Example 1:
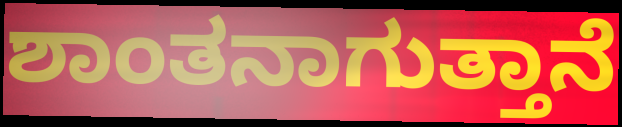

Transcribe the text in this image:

ಶಾಂತನಾಗುತ್ತಾನೆ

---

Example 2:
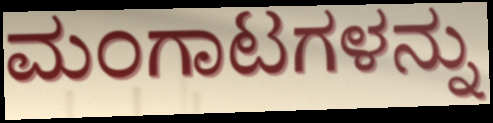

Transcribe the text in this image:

ಮಂಗಾಟಗಳನ್ನು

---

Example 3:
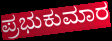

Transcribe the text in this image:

ಪ್ರಭುಕುಮಾರ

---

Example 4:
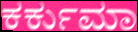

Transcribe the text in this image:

ಕರ್ಕುಮಾ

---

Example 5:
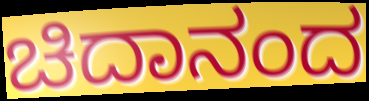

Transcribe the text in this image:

ಚಿದಾನಂದ